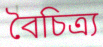
বৈচিত্ৰ্য